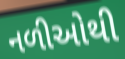
નળીઓથી